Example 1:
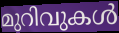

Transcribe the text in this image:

മുറിവുകൾ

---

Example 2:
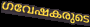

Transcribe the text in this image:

ഗവേഷകരുടെ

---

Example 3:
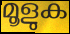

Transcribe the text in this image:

മൂളുക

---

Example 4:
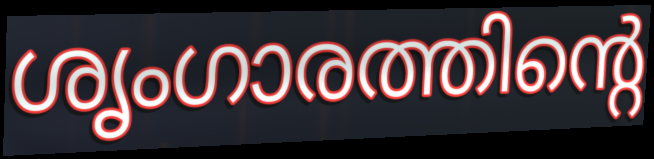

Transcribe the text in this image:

ശൃംഗാരത്തിന്റെ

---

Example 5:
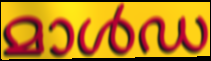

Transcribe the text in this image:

മാൾഡ